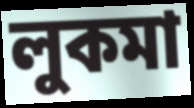
লুকমা